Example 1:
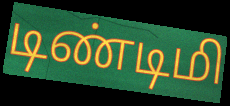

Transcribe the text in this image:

டிண்டிமி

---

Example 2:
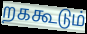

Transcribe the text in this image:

றககூடும்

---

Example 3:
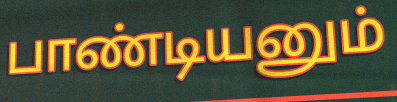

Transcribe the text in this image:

பாண்டியனும்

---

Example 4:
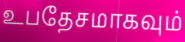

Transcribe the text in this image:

உபதேசமாகவும்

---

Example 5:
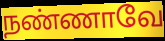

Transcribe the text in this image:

நண்ணாவே